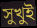
সুখুই